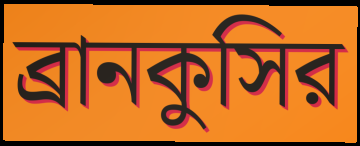
ব্রানকুসির